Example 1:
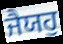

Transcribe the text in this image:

ਜੈਯਹੁ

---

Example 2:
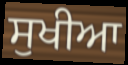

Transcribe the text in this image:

ਸੁਖੀਆ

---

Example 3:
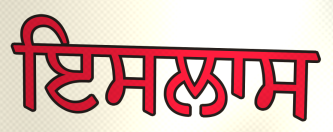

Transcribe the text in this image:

ਇਸਲਾਸ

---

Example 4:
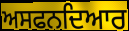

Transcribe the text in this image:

ਅਸਫਨਦਿਆਰ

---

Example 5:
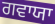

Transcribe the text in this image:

ਗਵਾਯਾ